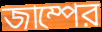
জাম্পের